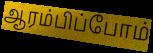
ஆரம்பிப்போம்